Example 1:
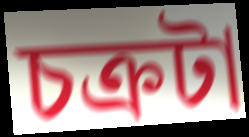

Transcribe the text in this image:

চক্রটা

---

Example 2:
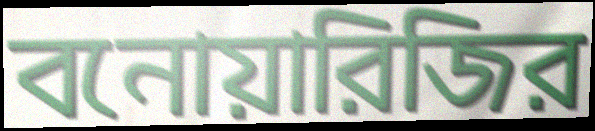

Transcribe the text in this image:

বনোয়ারিজির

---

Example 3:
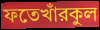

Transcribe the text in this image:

ফতেখাঁরকুল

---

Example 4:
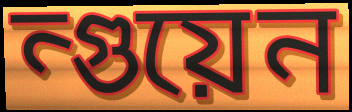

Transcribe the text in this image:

ন্গুয়েন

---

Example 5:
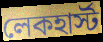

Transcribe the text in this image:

লেকহার্স্ট